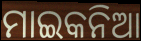
ମାଇକନିଆ